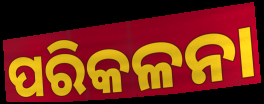
ପରିକଳନା